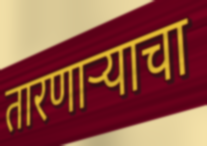
तारणाऱ्याचा